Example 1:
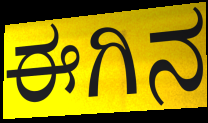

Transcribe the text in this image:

ಈಗಿನ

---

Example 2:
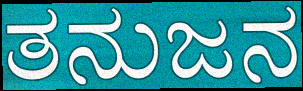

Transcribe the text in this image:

ತನುಜನ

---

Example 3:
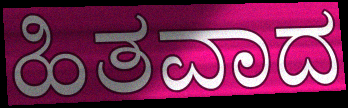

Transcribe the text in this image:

ಹಿತವಾದ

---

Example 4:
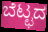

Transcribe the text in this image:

ಬೆಟ್ಟದ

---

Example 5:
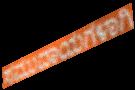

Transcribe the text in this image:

ಸಮುದಾಯಗಳಾಗಿ